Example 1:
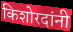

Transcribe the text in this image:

किशोरदांनी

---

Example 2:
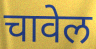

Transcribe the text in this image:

चावेल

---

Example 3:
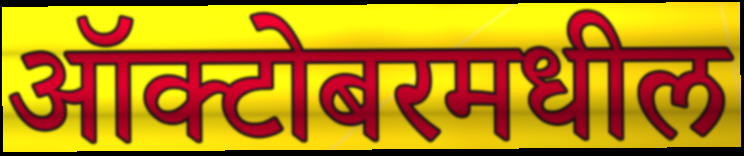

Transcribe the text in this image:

ऑक्टोबरमधील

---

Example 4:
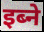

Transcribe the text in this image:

इब्ने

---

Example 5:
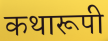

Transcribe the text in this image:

कथारूपी